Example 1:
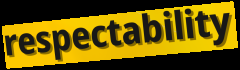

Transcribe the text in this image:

respectability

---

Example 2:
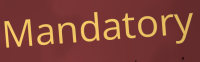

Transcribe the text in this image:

Mandatory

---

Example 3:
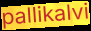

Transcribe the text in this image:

pallikalvi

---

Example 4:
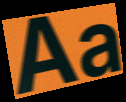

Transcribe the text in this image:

Aa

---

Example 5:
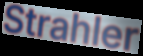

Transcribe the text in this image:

Strahler